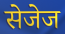
सेजेज